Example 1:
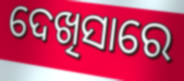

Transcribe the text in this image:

ଦେଖିସାରେ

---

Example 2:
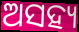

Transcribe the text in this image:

ଅସହ୍ୟ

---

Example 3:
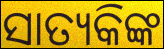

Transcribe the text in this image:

ସାତ୍ୟକିଙ୍କ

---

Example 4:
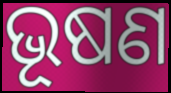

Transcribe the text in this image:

ଭୂଷଣ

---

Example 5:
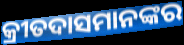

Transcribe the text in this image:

କ୍ରୀତଦାସମାନଙ୍କର